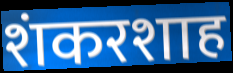
शंकरशाह